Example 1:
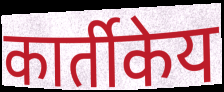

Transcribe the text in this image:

कार्तीकेय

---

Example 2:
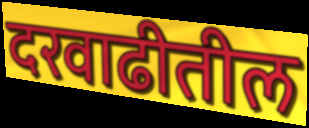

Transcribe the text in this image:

दरवाढीतील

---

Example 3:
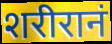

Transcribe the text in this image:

शरीरानं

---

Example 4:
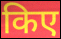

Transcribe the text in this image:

किए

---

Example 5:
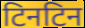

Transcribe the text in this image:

टिनटिन